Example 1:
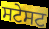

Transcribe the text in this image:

ਸਟੇਸਟ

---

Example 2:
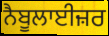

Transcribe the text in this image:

ਨੈਬੂਲਾਈਜ਼ਰ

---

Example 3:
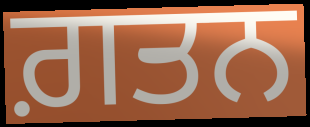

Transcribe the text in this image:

ਗ਼ਤਨ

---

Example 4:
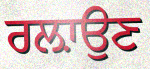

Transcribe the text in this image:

ਰਲ਼ਾਉਣ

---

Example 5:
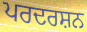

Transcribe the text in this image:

ਪਰਦਰਸ਼ਨ